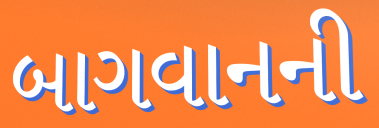
બાગવાનની